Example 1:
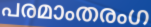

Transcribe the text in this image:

പരമാംതരംഗ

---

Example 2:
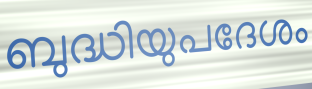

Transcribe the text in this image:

ബുദ്ധിയുപദേശം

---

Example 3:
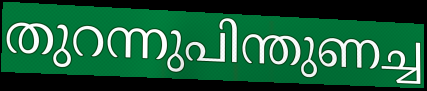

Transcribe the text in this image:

തുറന്നുപിന്തുണച്ച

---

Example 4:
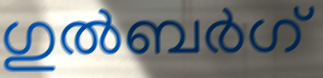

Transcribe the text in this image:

ഗുൽബർഗ്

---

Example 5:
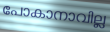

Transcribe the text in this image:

പോകാനാവില്ല